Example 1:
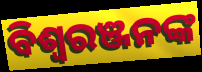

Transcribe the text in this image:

ବିଶ୍ବରଞ୍ଜନଙ୍କ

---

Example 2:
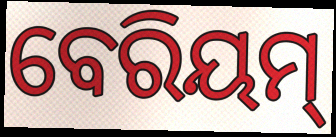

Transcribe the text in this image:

ବେରିୟମ୍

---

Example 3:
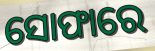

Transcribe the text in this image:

ସୋଫାରେ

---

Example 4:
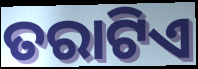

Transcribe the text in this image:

ତରାଟିଏ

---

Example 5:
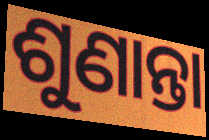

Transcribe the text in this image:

ଶୁଣାନ୍ତା